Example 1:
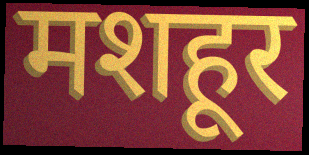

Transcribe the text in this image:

मशहूर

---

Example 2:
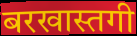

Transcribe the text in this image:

बरखास्तगी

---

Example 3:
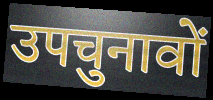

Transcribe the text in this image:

उपचुनावों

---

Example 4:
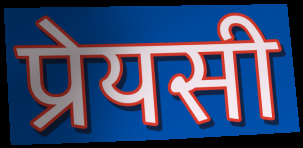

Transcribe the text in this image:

प्रेयसी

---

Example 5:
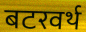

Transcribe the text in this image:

बटरवर्थ